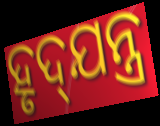
ହୃଦ୍‌ଯନ୍ତ୍ର